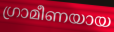
ഗ്രാമീണയായ